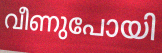
വീണുപോയി